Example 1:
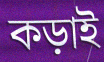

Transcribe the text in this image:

কড়াই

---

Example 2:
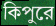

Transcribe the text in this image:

কিপুরে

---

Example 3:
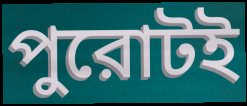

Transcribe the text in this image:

পুরোটই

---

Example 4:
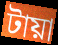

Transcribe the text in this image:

টায়া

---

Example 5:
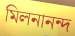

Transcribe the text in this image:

মিলনানন্দ